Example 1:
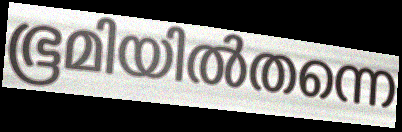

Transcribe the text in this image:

ഭൂമിയിൽതന്നെ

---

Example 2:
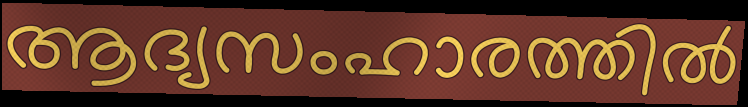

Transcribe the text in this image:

ആദ്യസംഹാരത്തിൽ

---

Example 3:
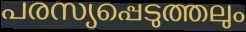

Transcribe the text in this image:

പരസ്യപ്പെടുത്തലും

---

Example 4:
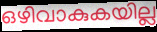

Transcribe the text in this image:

ഒഴിവാകുകയില്ല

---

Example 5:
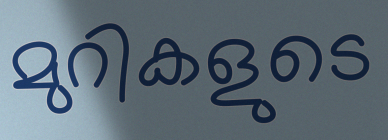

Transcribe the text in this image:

മുറികളുടെ